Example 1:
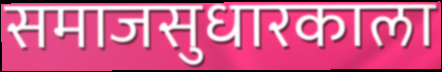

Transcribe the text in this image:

समाजसुधारकाला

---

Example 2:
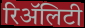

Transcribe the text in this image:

रिॲलिटी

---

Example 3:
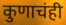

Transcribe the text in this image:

कुणाचंही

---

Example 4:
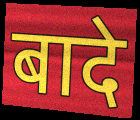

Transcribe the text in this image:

बादे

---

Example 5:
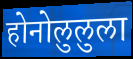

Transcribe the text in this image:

होनोलुलुला